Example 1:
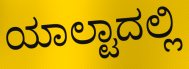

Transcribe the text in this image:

ಯಾಲ್ಟಾದಲ್ಲಿ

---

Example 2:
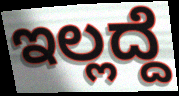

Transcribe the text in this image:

ಇಲ್ಲದ್ದೆ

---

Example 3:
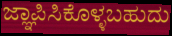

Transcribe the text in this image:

ಜ್ಞಾಪಿಸಿಕೊಳ್ಳಬಹುದು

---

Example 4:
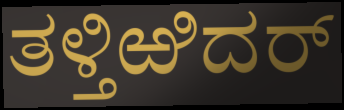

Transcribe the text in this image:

ತಳ್ತಿಱಿದರ್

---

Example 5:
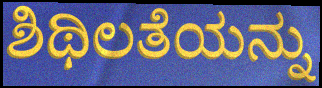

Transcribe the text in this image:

ಶಿಥಿಲತೆಯನ್ನು